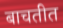
बाचतीत